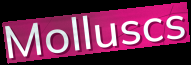
Molluscs